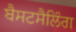
ਬੈਸਟਸੈਲਿੰਗ